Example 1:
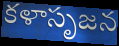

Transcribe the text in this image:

కళాసృజన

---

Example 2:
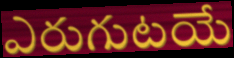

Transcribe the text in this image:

ఎరుగుటయే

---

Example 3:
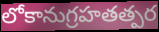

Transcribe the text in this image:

లోకానుగ్రహతత్పర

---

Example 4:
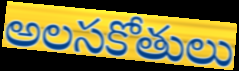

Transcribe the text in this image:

అలసకోతులు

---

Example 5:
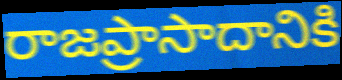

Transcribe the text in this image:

రాజప్రాసాదానికి